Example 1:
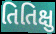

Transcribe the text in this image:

તિતિક્ષુ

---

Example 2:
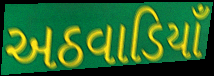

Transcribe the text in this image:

અઠવાડિયાઁ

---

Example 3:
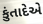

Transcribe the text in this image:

કુંતાદેએ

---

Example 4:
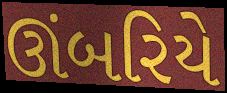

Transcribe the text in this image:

ઊંબરિયે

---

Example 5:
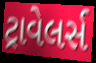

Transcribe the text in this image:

ટ્રાવેલર્સ